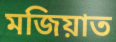
মজিয়াত